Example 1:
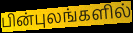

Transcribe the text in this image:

பின்புலங்களில்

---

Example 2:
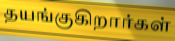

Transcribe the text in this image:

தயங்குகிறார்கள்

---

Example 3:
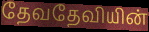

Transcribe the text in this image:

தேவதேவியின்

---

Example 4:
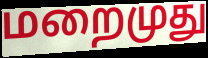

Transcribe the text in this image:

மறைமுது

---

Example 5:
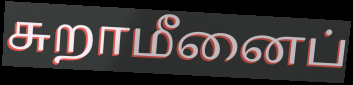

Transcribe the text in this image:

சுறாமீனைப்